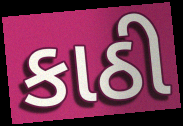
કાઠી